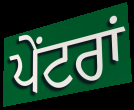
ਪੇਂਟਰਾਂ